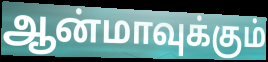
ஆன்மாவுக்கும்